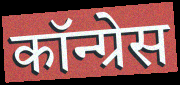
कॉन्ग्रेस